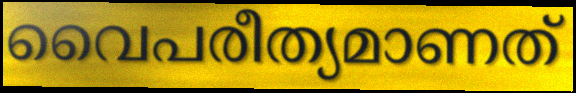
വൈപരീത്യമാണത്